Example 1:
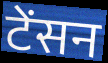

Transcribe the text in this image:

टेंसन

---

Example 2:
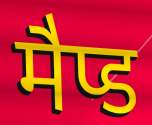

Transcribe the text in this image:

मैप्ड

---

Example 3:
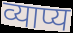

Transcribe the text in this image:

व्याप्य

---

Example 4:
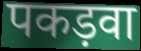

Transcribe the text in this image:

पकड़वा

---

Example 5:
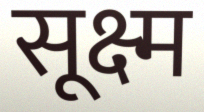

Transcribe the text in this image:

सूक्ष्‍म